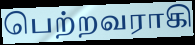
பெற்றவராகி